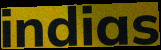
indias